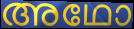
അഥോ